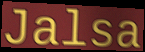
Jalsa